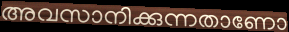
അവസാനിക്കുന്നതാണോ